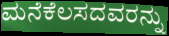
ಮನೆಕೆಲಸದವರನ್ನು